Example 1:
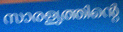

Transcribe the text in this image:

സാരള്യത്തിന്റെ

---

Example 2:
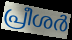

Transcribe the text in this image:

പ്രീശർ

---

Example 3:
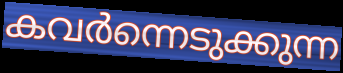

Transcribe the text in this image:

കവർന്നെടുക്കുന്ന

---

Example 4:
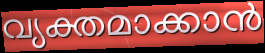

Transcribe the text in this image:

വ്യക്തമാക്കാൻ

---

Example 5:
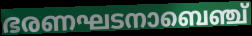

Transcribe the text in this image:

ഭരണഘടനാബെഞ്ച്